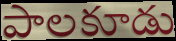
పాలకూడు